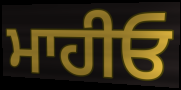
ਮਾਹੀਓ